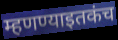
म्हणण्याइतकंच